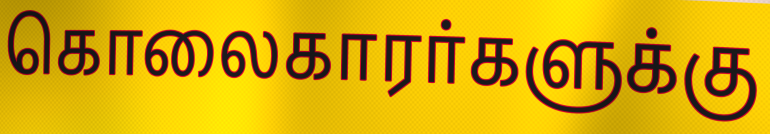
கொலைகாரர்களுக்கு